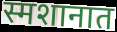
स्मशानात